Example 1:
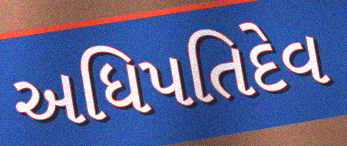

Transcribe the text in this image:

અધિપતિદેવ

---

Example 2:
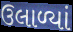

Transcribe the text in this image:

ઉલાળ્યાં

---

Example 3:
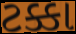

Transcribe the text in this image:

ટક્કા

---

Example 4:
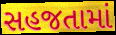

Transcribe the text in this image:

સહજતામાં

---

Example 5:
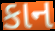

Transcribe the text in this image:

કાન